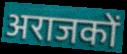
अराजकों